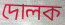
দোলক